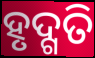
ହୃଦ୍ଗତି